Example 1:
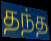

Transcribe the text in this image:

தந்த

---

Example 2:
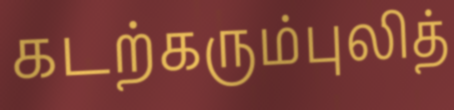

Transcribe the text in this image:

கடற்கரும்புலித்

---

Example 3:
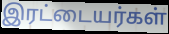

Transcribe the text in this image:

இரட்டையர்கள்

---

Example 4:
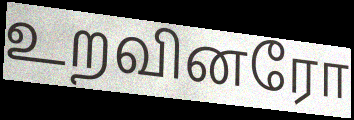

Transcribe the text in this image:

உறவினரோ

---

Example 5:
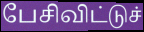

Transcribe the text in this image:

பேசிவிட்டுச்